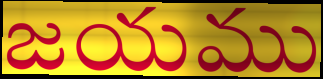
జయము